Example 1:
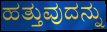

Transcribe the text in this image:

ಹತ್ತುವುದನ್ನು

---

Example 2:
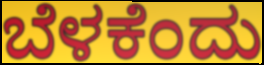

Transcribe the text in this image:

ಬೆಳಕೆಂದು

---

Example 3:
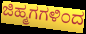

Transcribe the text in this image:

ಜಿಹ್ಮಗಗಳಿಂದ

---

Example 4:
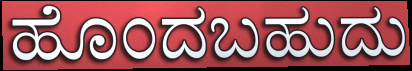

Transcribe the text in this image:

ಹೊಂದಬಹುದು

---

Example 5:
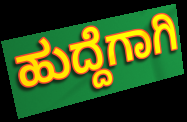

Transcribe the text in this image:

ಹುದ್ದೆಗಾಗಿ